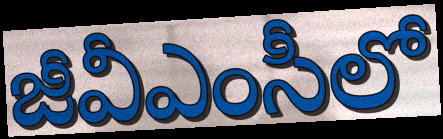
జీవీఎంసీలో